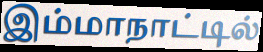
இம்மாநாட்டில்